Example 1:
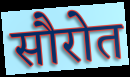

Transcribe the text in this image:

सौरोत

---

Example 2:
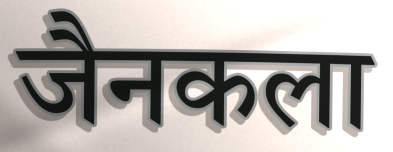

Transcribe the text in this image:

जैनकला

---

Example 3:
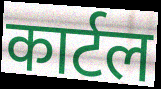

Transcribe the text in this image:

कार्टल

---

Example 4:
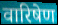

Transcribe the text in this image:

वारिषेण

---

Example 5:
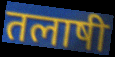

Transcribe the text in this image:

तलाषी